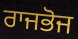
ਰਾਜਭੋਜ